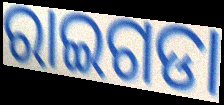
ରାଇଗଡା